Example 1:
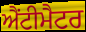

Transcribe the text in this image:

ਐਂਟੀਮੈਟਰ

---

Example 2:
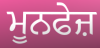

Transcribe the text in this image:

ਮੂਨਫੇਜ਼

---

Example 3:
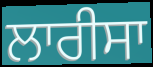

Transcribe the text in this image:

ਲਾਰੀਸਾ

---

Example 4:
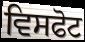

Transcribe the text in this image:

ਵਿਸਫੋਟ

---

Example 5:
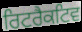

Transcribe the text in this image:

ਰਿਟਰੈਕਟਿਵ